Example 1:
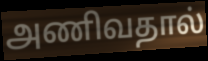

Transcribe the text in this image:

அணிவதால்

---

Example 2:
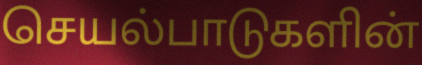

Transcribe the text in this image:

செயல்பாடுகளின்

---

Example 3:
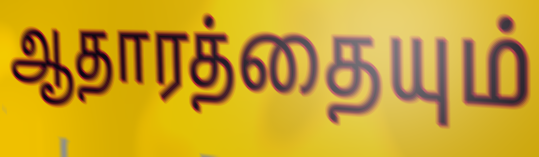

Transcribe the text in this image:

ஆதாரத்தையும்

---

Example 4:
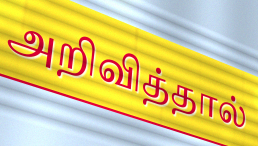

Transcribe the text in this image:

அறிவித்தால்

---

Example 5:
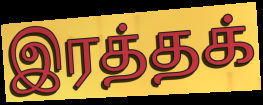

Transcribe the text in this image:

இரத்தக்